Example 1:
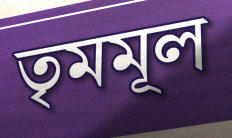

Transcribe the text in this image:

তৃমমূল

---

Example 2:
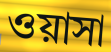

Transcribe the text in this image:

ওয়াসা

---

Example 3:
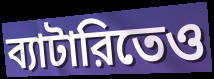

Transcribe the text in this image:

ব্যাটারিতেও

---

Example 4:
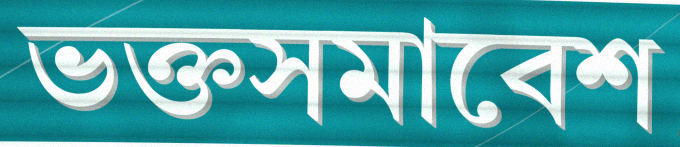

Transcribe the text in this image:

ভক্তসমাবেশ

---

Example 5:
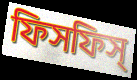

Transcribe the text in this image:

ফিসফিস্